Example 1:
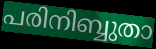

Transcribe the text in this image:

പരിനിബ്ബുതാ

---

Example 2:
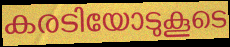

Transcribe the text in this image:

കരടിയോടുകൂടെ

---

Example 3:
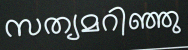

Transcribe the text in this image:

സത്യമറിഞ്ഞു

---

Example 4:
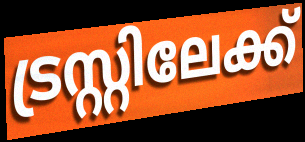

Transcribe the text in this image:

ട്രസ്റ്റിലേക്ക്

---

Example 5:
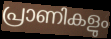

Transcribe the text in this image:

പ്രാണികളും